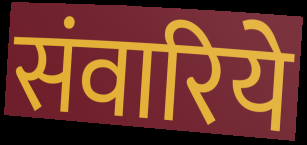
संवारिये